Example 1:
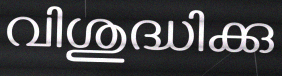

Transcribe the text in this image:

വിശുദ്ധിക്കു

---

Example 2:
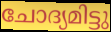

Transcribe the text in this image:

ചോദ്യമിട്ടു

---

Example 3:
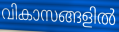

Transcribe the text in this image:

വികാസങ്ങളിൽ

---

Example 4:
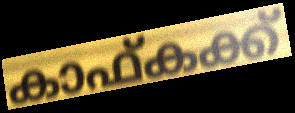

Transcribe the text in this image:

കാഫ്കക്ക്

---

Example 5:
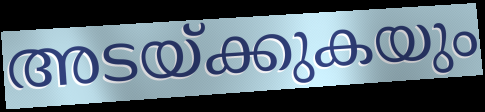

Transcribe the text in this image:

അടയ്ക്കുകയും